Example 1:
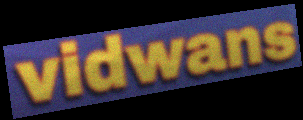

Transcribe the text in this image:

vidwans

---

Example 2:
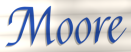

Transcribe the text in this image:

Moore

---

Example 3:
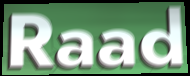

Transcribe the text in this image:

Raad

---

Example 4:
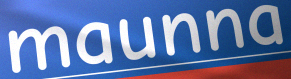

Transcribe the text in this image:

maunna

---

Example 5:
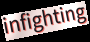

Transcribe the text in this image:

infighting